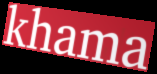
khama